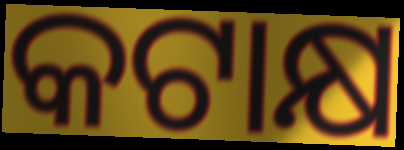
କଟାକ୍ଷ